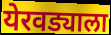
येरवड्याला